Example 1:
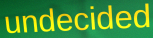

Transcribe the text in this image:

undecided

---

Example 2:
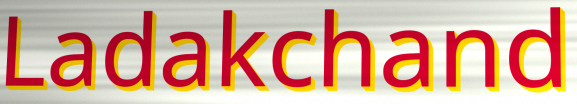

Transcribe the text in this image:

Ladakchand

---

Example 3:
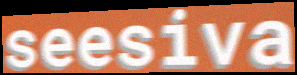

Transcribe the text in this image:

seesiva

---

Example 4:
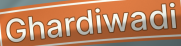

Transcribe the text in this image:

Ghardiwadi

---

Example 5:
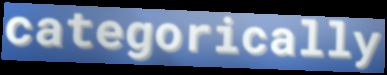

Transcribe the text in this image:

categorically